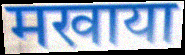
मखाया